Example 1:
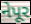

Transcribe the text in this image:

નેપૂર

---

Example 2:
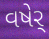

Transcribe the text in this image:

વષેર્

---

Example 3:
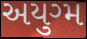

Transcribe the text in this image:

અયુગ્મ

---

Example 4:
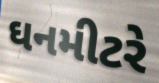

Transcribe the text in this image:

ઘનમીટરે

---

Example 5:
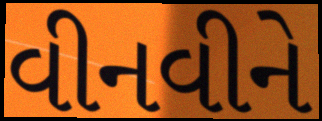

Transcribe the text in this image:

વીનવીને